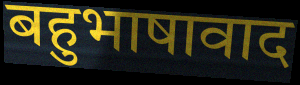
बहुभाषावाद